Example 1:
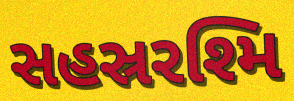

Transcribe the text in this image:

સહસ્રરશ્મિ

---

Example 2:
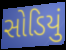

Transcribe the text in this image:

સોડિયું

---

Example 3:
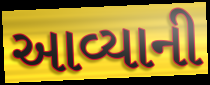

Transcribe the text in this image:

આવ્યાની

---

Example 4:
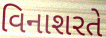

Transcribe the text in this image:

વિનાશરતે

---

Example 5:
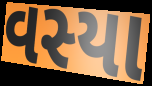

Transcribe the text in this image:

વસ્યા